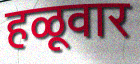
हळूवार